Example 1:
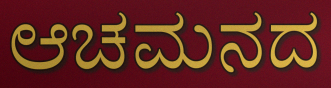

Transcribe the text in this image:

ಆಚಮನದ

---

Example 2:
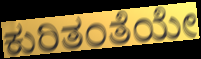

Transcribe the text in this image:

ಕುರಿತಂತೆಯೇ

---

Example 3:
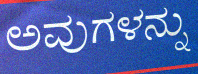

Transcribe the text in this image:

ಅವುಗಳನ್ನು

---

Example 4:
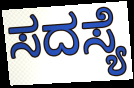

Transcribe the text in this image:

ಸದಸ್ಯೆ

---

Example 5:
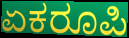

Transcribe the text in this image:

ಏಕರೂಪಿ